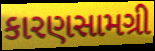
કારણસામગ્રી